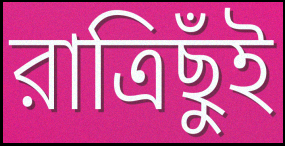
রাত্রিছুঁই